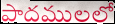
పాదములలో